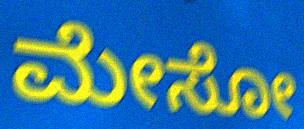
ಮೇಸೋ